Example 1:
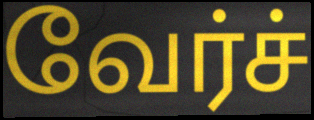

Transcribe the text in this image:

வேர்ச்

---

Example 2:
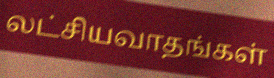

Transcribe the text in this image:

லட்சியவாதங்கள்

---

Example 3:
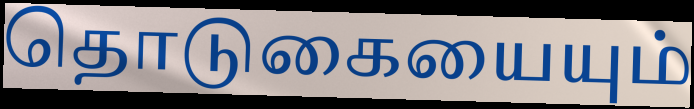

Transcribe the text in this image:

தொடுகையையும்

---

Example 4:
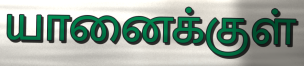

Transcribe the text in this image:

யானைக்குள்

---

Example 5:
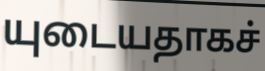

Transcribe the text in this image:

யுடையதாகச்